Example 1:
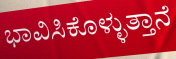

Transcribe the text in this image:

ಭಾವಿಸಿಕೊಳ್ಳುತ್ತಾನೆ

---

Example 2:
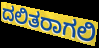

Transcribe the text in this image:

ದಲಿತರಾಗಲಿ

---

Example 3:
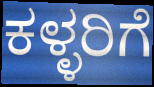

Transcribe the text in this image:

ಕಳ್ಳರಿಗೆ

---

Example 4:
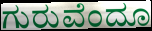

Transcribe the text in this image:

ಗುರುವೆಂದೂ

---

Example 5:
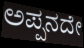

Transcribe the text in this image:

ಅಪ್ಪನದೇ